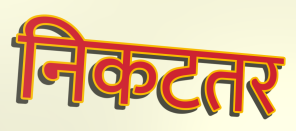
निकटतर